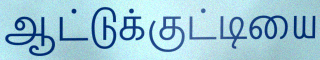
ஆட்டுக்குட்டியை